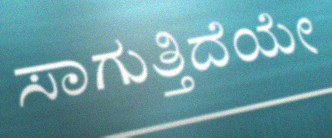
ಸಾಗುತ್ತಿದೆಯೇ